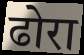
ढोरा